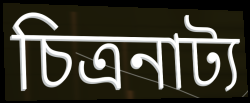
চিত্রনাট্য